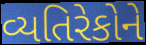
વ્યતિરેકોને